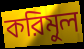
করিমুল